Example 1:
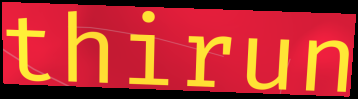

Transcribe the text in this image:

thirun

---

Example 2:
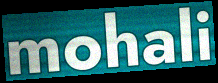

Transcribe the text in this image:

mohali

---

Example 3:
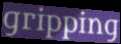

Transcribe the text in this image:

gripping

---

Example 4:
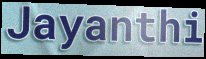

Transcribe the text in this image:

Jayanthi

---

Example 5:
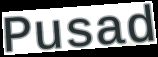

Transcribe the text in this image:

Pusad